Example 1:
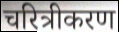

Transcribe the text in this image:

चरित्रीकरण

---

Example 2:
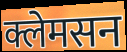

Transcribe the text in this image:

क्लेमसन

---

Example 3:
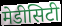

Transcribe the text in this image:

मेडीसिटी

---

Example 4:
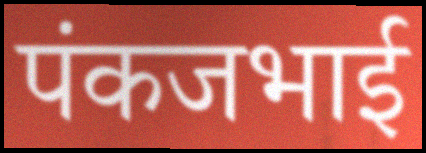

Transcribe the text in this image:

पंकजभाई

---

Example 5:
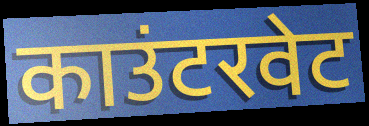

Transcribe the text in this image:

काउंटरवेट